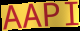
AAPI